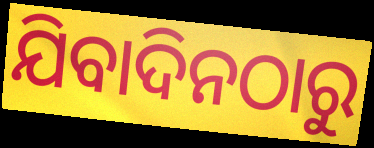
ଯିବାଦିନଠାରୁ